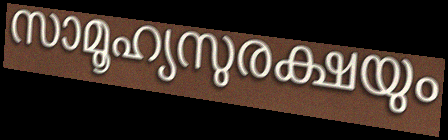
സാമൂഹ്യസുരക്ഷയും